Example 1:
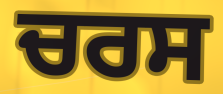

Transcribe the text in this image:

ਚਰਸ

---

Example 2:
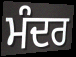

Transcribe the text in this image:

ਮੰਦਰ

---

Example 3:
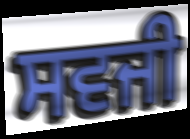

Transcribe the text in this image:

ਸਵਜੀ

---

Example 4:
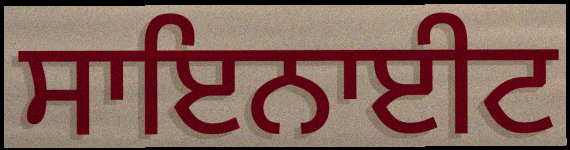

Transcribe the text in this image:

ਸਾਇਨਾਈਟ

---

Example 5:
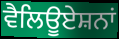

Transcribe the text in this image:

ਵੈਲਿਊਏਸ਼ਨਾਂ